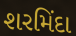
શરમિંદા